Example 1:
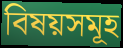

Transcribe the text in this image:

বিষয়সমূহ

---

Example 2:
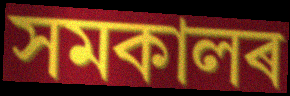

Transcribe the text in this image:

সমকালৰ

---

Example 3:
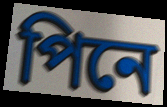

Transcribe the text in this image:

পিনে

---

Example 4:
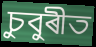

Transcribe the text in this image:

চুবুৰীত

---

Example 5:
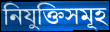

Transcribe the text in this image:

নিযুক্তিসমূহ